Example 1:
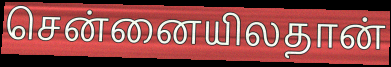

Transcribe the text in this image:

சென்னையிலதான்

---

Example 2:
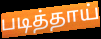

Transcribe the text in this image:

படித்தாய்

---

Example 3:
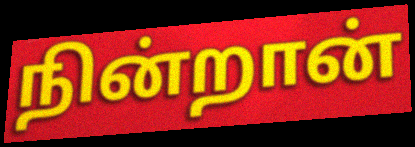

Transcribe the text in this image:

நின்றான்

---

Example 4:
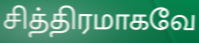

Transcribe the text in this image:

சித்திரமாகவே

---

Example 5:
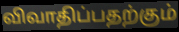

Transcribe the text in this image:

விவாதிப்பதற்கும்